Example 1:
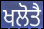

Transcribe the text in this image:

ਖਲੋਤੈ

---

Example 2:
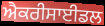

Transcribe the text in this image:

ਐਕਰੀਸਾਈਡਲ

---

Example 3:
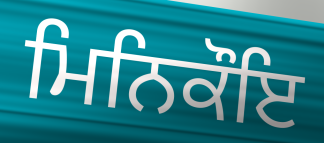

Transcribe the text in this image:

ਮਿਨਿਕੌਇ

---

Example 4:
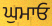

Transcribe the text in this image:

ਘੁਮਾਓ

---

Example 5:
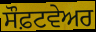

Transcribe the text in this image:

ਸੌਫ਼ਟਵੇਅਰ